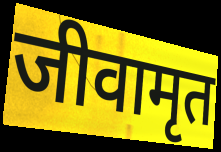
जीवामृत